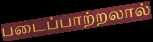
படைப்பாற்றலால்